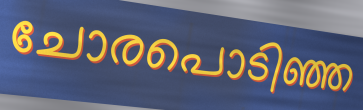
ചോരപൊടിഞ്ഞ